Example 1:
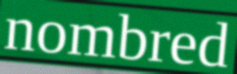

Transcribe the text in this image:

nombred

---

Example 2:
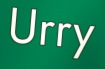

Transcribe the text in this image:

Urry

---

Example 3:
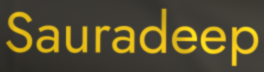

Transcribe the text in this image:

Sauradeep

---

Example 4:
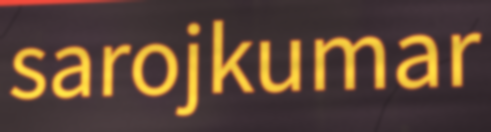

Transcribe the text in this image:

sarojkumar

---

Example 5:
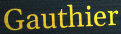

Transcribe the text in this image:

Gauthier